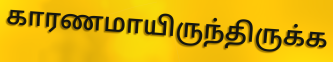
காரணமாயிருந்திருக்க